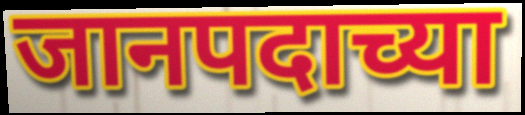
जानपदाच्या